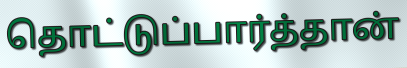
தொட்டுப்பார்த்தான்